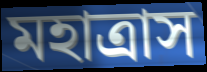
মহাত্রাস